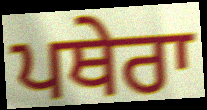
ਪਥੇਰਾ